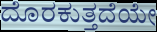
ದೊರಕುತ್ತದೆಯೇ